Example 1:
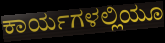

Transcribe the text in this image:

ಕಾರ್ಯಗಳಲ್ಲಿಯೂ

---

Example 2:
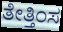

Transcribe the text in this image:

ತೇತ್ತಿಂಸ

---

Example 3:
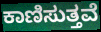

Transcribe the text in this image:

ಕಾಣಿಸುತ್ತವೆ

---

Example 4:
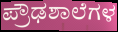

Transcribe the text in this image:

ಪ್ರೌಢಶಾಲೆಗಳ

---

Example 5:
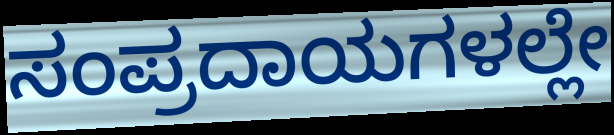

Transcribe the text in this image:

ಸಂಪ್ರದಾಯಗಳಲ್ಲೇ